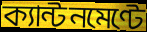
ক্যান্টনমেণ্টে